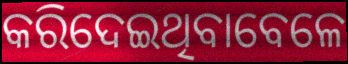
କରିଦେଇଥିବାବେଳେ